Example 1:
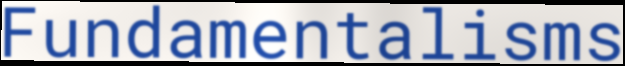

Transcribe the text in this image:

Fundamentalisms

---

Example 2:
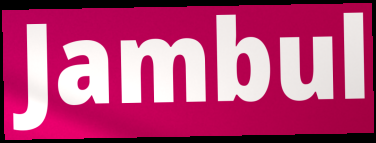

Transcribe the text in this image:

Jambul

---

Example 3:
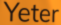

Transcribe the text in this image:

Yeter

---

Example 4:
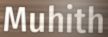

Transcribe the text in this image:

Muhith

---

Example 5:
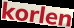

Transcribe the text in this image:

korlen